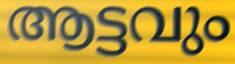
ആട്ടവും